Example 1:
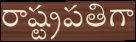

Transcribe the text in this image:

రాష్ట్రపతిగా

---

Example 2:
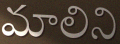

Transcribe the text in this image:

మాలిని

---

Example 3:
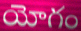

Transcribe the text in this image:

యోగం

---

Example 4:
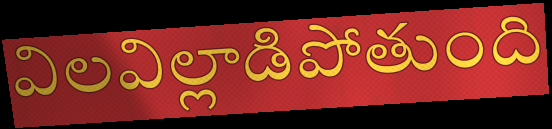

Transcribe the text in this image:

విలవిల్లాడిపోతుంది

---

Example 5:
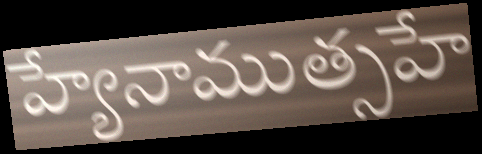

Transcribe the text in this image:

హ్యేనాముత్సహే